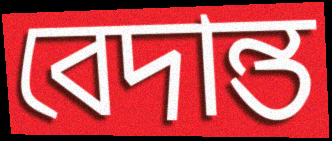
বেদান্ত